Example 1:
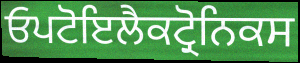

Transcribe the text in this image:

ਓਪਟੋਇਲੈਕਟ੍ਰੋਨਿਕਸ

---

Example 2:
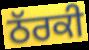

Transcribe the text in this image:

ਠੱਰਕੀ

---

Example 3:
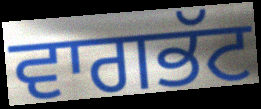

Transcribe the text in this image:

ਵਾਗਭੱਟ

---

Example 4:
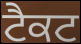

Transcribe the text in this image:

ਟੈਕਟ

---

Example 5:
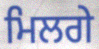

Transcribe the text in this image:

ਮਿਲਗੇ